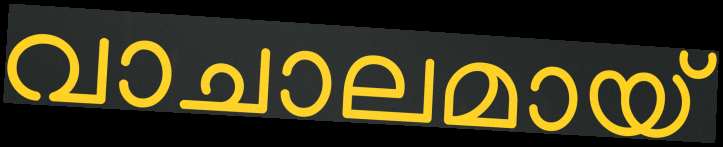
വാചാലമായ്